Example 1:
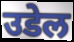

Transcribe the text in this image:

उडेल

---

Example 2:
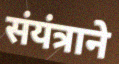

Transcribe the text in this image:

संयंत्राने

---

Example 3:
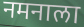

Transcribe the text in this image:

नमनाला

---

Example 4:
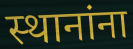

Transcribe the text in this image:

स्थानांना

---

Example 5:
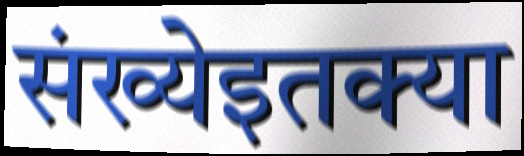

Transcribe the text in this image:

संख्येइतक्या